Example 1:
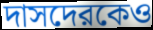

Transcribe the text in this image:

দাসদেরকেও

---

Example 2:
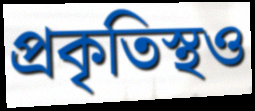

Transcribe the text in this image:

প্রকৃতিস্থও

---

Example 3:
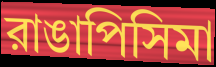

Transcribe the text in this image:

রাঙাপিসিমা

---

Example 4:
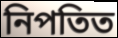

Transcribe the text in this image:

নিপতিত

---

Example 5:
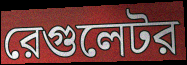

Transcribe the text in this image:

রেগুলেটর